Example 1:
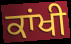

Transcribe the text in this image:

ਕਾਂਖੀ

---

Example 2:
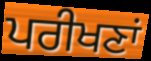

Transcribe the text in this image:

ਪਰੀਖਣਾਂ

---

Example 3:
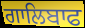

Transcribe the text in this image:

ਗਾਲਿਬਾਫ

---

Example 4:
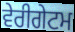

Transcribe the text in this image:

ਵੇਰੀਗੇਟਮ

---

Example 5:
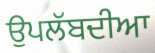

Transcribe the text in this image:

ਉਪਲੱਬਦੀਆ